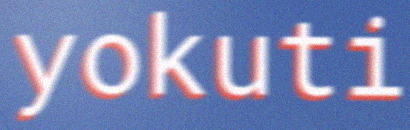
yokuti